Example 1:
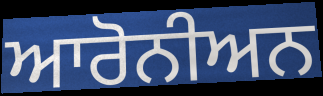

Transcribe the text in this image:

ਆਰੋਨੀਅਨ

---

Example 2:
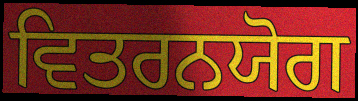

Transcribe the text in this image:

ਵਿਤਰਨਯੋਗ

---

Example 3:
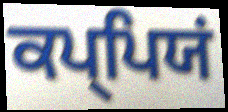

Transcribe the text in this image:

ਕਪ੍ਪਿਯਂ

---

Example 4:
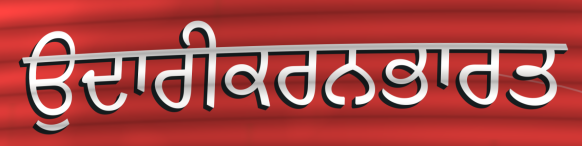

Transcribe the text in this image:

ਉਦਾਰੀਕਰਨਭਾਰਤ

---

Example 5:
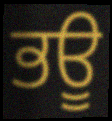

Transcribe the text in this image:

ਭਊ